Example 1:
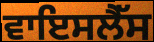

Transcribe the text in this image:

ਵਾਇਸਲੈੱਸ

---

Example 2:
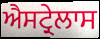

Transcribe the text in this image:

ਐਸਟ੍ਰੇਲਾਸ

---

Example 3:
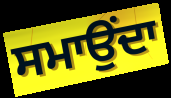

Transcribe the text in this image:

ਸਮਾਉਂਦਾ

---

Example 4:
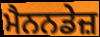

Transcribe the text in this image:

ਮੈਨਨਡੇਜ਼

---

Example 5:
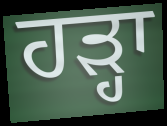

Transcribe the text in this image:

ਹੜ੍ਹਾ